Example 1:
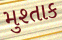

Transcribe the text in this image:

મુશ્તાક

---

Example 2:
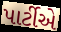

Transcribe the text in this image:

પાર્ટીએ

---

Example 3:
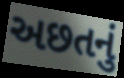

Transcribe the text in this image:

અછતનું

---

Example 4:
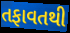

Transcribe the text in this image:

તફાવતથી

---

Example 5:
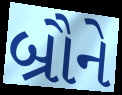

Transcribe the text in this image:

બ્રૌને